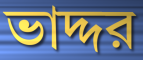
ভাদ্দর